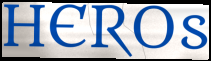
HEROs